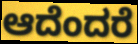
ಆದೆಂದರೆ